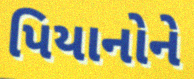
પિયાનોને